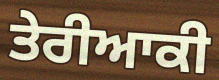
ਤੇਰੀਆਕੀ